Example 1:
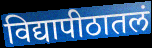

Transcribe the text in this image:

विद्यापीठातलं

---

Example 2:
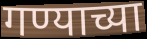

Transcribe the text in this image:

गण्याच्या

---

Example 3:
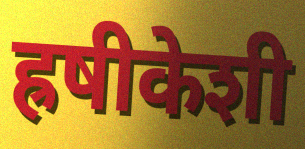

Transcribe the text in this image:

ह्रषीकेशी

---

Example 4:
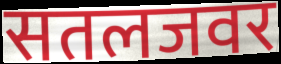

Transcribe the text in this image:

सतलजवर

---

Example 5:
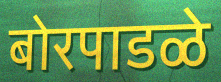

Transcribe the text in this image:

बोरपाडळे